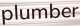
plumber